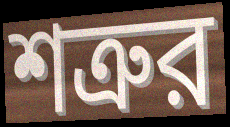
শত্রুর